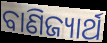
ବାଣିଜ୍ୟାର୍ଥ